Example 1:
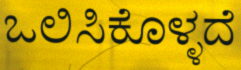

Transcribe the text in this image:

ಒಲಿಸಿಕೊಳ್ಳದೆ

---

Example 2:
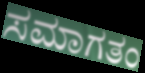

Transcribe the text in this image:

ಸಮಾಗತಂ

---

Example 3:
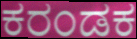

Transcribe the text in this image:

ಕರಂಡಕ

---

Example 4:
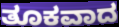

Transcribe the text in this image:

ತೂಕವಾದ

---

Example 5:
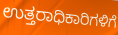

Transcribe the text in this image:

ಉತ್ತರಾಧಿಕಾರಿಗಳಿಗೆ